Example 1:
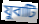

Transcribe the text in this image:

যুবাটি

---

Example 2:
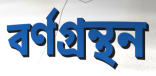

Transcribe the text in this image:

বর্ণগ্রন্থন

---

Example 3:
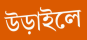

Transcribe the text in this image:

উড়াইলে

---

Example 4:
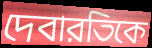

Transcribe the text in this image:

দেবারতিকে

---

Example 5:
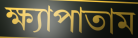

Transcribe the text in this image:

ক্ষ্যাপাতাম